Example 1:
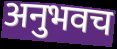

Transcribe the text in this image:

अनुभवच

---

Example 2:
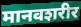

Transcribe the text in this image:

मानवशरीर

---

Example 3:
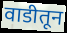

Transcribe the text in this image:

वाडीतून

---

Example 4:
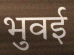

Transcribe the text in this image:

भुवई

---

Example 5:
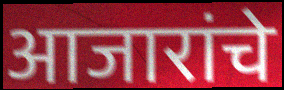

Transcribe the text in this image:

आजारांचे